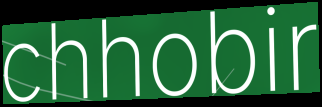
chhobir